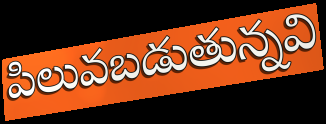
పిలువబడుతున్నవి